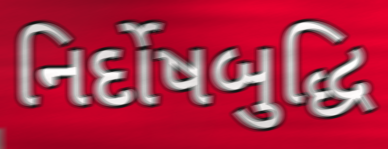
નિર્દોષબુદ્ધિ